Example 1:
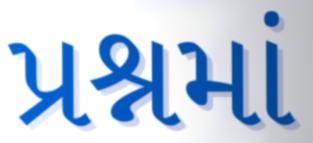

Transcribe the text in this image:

પ્રશ્નમાં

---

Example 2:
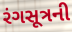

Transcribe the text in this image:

રંગસૂત્રની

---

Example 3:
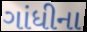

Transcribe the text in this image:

ગાંધીના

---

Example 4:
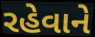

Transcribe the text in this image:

રહેવાને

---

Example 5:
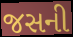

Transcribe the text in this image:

જસની